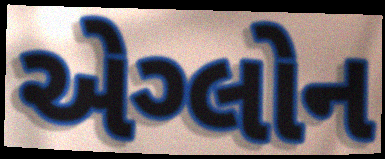
એગ્લોન